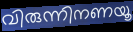
വിരുന്നിനണയൂ